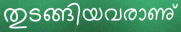
തുടങ്ങിയവരാണു്